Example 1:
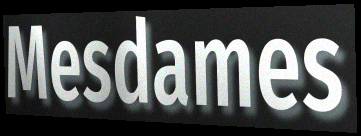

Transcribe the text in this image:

Mesdames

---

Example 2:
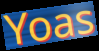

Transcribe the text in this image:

Yoas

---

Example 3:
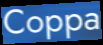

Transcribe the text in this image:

Coppa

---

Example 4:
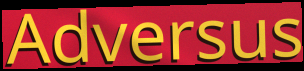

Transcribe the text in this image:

Adversus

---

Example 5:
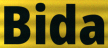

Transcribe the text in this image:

Bida